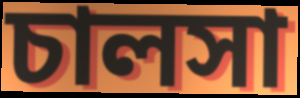
চালসা